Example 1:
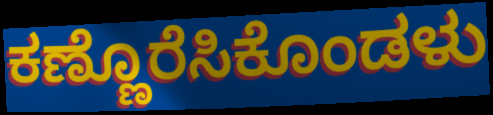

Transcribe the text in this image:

ಕಣ್ಣೊರೆಸಿಕೊಂಡಳು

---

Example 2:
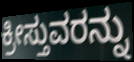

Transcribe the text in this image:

ಕ್ರೀಸ್ತುವರನ್ನು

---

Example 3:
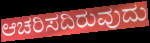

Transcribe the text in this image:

ಆಚರಿಸದಿರುವುದು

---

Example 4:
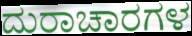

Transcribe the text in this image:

ದುರಾಚಾರಗಳ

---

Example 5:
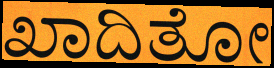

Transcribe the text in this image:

ಖಾದಿತೋ